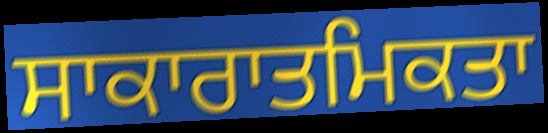
ਸਾਕਾਰਾਤਮਿਕਤਾ